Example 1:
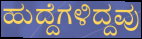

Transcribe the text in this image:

ಹುದ್ದೆಗಳಿದ್ದವು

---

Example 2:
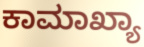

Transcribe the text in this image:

ಕಾಮಾಖ್ಯಾ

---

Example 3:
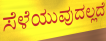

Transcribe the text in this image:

ಸೆಳೆಯುವುದಲ್ಲದೆ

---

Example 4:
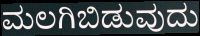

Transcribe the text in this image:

ಮಲಗಿಬಿಡುವುದು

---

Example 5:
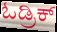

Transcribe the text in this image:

ಓಡ್ರಿಕ್